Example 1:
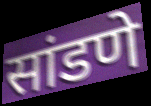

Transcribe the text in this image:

सांडणे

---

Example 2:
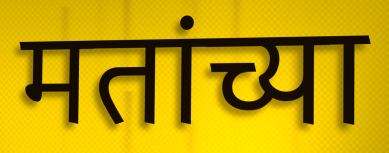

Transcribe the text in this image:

मतांच्या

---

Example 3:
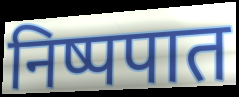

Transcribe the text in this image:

निष्पपात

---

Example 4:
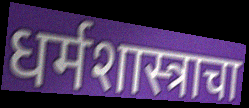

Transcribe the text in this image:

धर्मशास्त्राचा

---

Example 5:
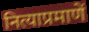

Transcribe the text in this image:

नित्याप्रमाणें